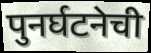
पुनर्घटनेची